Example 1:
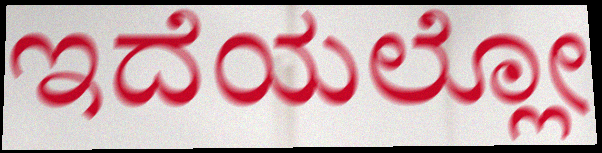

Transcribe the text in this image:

ಇದೆಯಲ್ಲೋ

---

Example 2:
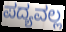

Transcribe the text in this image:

ಪದ್ಯವಲ್ಲ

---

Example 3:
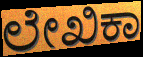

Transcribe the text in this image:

ಲೇಖಿಕಾ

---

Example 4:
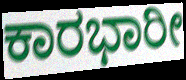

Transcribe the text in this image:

ಕಾರಭಾರೀ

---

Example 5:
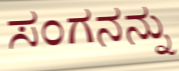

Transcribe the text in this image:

ಸಂಗನನ್ನು